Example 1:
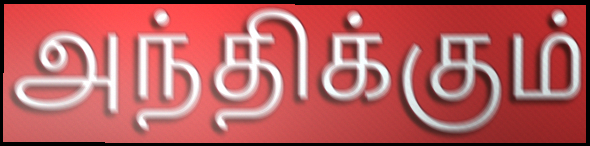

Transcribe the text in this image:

அந்திக்கும்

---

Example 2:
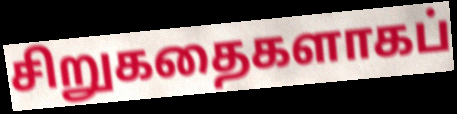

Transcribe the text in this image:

சிறுகதைகளாகப்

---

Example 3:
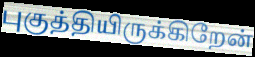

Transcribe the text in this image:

புகுத்தியிருக்கிறேன்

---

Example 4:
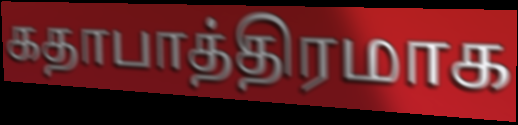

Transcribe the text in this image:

கதாபாத்திரமாக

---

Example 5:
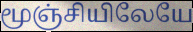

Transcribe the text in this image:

மூஞ்சியிலேயே